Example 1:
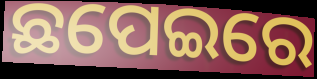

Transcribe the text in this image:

ଛପେଇରେ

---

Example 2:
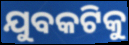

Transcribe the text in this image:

ଯୁବକଟିକୁ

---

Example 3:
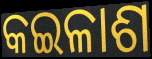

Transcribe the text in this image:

କଇଳାଶ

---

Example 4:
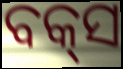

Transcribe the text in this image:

ବକ୍‍ସ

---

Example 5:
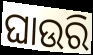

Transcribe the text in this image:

ଘାଉରି